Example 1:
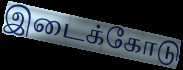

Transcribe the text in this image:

இடைக்கோடு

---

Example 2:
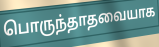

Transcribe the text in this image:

பொருந்தாதவையாக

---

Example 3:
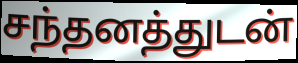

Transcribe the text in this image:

சந்தனத்துடன்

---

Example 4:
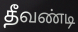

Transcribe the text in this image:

தீவண்டி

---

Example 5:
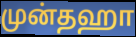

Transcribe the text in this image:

முன்தஹா